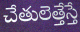
చేతులెత్తేస్తే